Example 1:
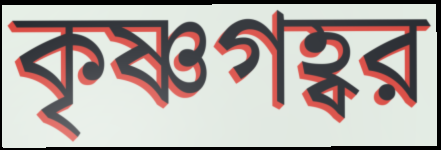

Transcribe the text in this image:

কৃষ্ণগহ্বর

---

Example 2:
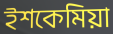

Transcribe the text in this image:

ইশকেমিয়া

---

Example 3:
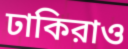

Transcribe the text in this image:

ঢাকিরাও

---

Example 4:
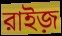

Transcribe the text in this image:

রাইজ়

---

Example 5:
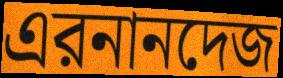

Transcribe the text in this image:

এরনানদেজ